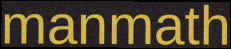
manmath